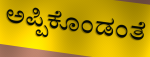
ಅಪ್ಪಿಕೊಂಡಂತೆ